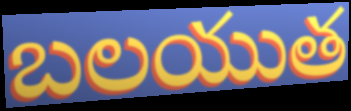
బలయుత